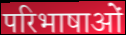
परिभाषाओं